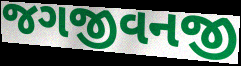
જગજીવનજી